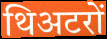
थिअटरों